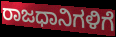
ರಾಜಧಾನಿಗಳಿಗೆ